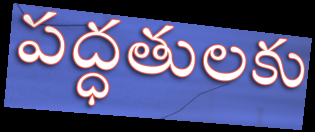
పద్ధతులకు